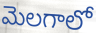
మెలగాలో